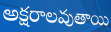
అక్షరాలవుతాయి